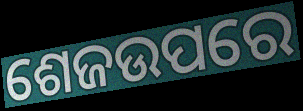
ଶେଜଉପରେ